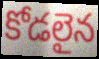
కోడలైన